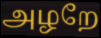
அழறே